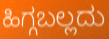
ಹಿಗ್ಗಬಲ್ಲದು